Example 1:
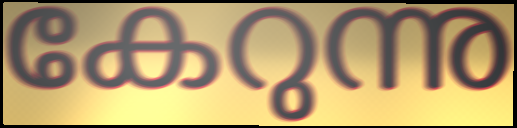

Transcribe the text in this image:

കേറുന്നു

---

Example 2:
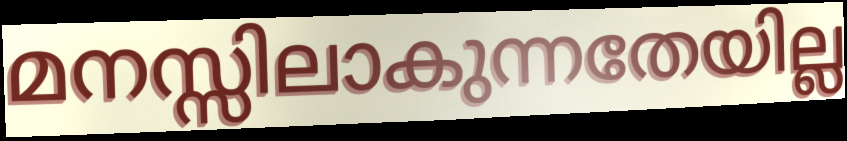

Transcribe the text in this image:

മനസ്സിലാകുന്നതേയില്ല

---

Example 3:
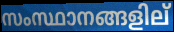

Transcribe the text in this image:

സംസ്ഥാനങ്ങളില്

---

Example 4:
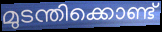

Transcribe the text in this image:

മുടന്തിക്കൊണ്ട്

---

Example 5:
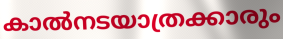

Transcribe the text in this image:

കാൽനടയാത്രക്കാരും